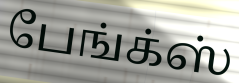
பேங்க்ஸ்